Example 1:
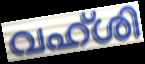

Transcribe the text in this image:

വഹ്ശി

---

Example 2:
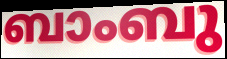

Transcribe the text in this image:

ബാംബു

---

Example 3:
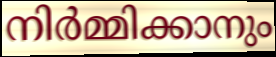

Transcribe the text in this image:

നിർമ്മിക്കാനും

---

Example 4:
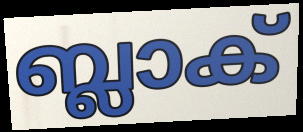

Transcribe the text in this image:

ബ്ലാക്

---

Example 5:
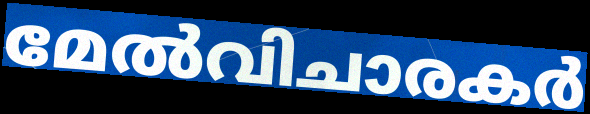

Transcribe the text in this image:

മേൽവിചാരകർ